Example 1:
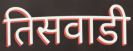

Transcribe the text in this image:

तिसवाडी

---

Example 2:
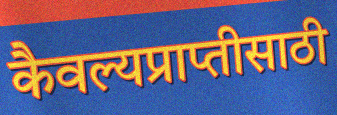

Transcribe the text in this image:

कैवल्यप्राप्तीसाठी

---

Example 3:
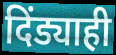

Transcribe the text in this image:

दिंड्याही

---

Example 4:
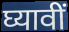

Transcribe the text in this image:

घ्यावीं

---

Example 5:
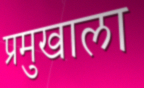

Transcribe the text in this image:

प्रमुखाला